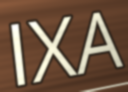
IXA